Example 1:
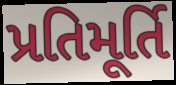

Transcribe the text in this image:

પ્રતિમૂર્તિ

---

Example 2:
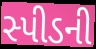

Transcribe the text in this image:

સ્પીડની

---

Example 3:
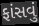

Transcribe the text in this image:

ફાંસવું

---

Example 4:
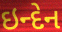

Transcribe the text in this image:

ઇન્દેન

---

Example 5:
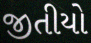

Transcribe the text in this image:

જીતીયો